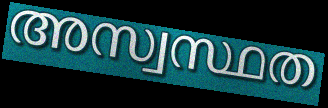
അസ്വസ്ഥത